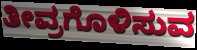
ತೀವ್ರಗೊಳಿಸುವ